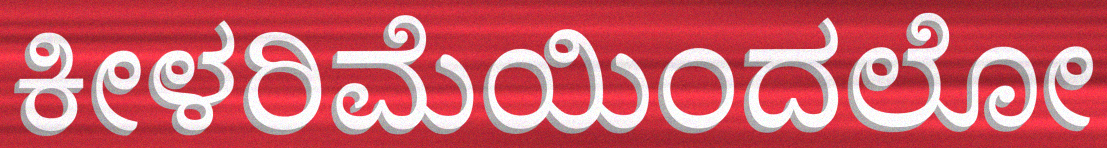
ಕೀಳರಿಮೆಯಿಂದಲೋ